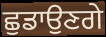
ਛੁਡਾਉਣਗੇ